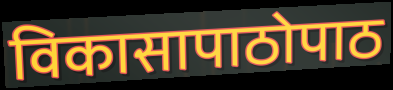
विकासापाठोपाठ